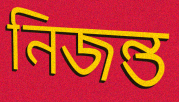
নিজন্ত